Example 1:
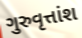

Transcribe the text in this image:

ગુરુવૃત્તાંશ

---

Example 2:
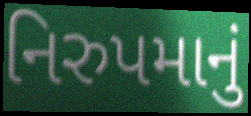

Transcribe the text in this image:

નિરુપમાનું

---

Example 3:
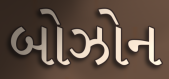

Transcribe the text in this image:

બોઝોન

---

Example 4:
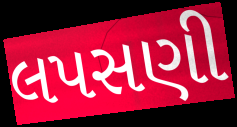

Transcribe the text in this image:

લપસણી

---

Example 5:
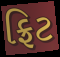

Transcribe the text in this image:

ફ્રિટ